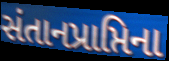
સંતાનપ્રાપ્તિના